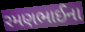
રમણભાઈના